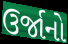
ઉર્જાનો